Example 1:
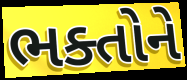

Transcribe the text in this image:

ભક્તોને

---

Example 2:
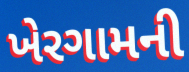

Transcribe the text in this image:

ખેરગામની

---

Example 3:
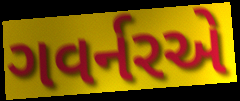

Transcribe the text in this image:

ગવર્નરએ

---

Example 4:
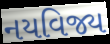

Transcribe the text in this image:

નયવિજ્ય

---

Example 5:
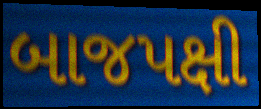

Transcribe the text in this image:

બાજપક્ષી